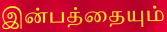
இன்பத்தையும்